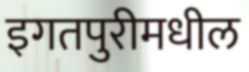
इगतपुरीमधील